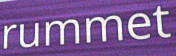
rummet